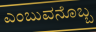
ಎಂಬುವನೊಬ್ಬ